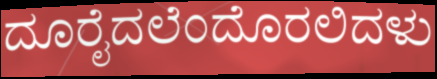
ದೂರೈದಲೆಂದೊರಲಿದಳು